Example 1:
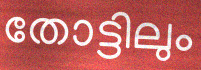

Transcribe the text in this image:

തോട്ടിലും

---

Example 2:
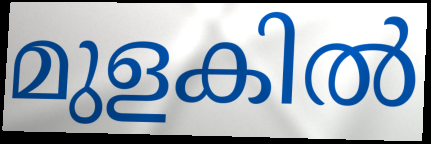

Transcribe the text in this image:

മുളകിൽ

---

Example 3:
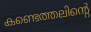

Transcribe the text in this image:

കണ്ടെത്തലിന്റെ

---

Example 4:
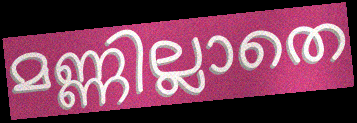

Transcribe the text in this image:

മണ്ണില്ലാതെ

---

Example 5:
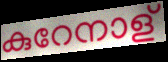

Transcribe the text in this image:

കുറേനാള്